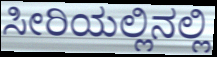
ಸೀರಿಯಲ್ಲಿನಲ್ಲಿ